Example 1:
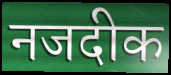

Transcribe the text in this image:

नजदीक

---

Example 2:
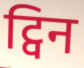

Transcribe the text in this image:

ट्विन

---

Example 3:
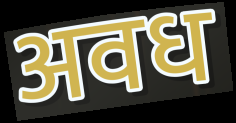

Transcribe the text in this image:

अवध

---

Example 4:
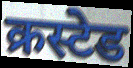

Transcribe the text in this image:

क्रस्टेड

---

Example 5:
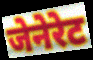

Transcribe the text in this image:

जेनेरेट